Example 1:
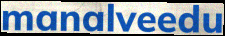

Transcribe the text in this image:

manalveedu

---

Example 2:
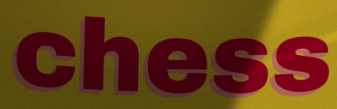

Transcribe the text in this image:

chess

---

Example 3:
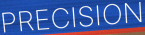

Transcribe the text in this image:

PRECISION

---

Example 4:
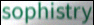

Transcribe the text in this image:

sophistry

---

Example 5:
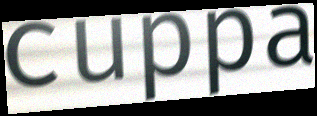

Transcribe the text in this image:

cuppa